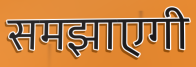
समझाएगी